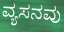
ವ್ಯಸನವು